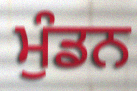
ਮੁੰਡਨ